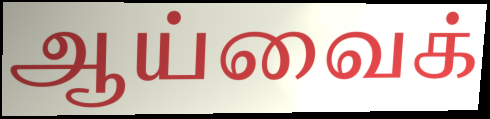
ஆய்வைக்